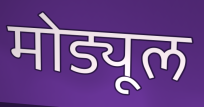
मोड्यूल